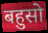
बहुसो